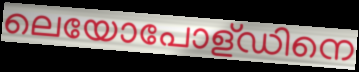
ലെയോപോള്ഡിനെ